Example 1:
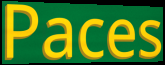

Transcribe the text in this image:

Paces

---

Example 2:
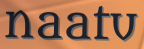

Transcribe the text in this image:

naatu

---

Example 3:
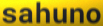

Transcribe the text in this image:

sahuno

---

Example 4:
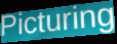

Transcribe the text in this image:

Picturing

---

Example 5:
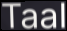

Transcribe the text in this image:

Taal